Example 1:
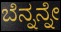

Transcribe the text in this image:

ಬೆನ್ನನ್ನೇ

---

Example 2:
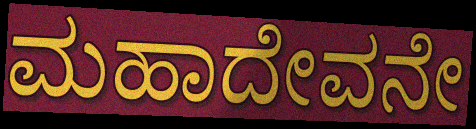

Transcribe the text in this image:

ಮಹಾದೇವನೇ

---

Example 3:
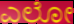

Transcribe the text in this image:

ಎಲೋ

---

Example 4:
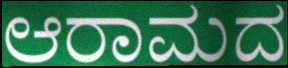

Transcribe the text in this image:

ಆರಾಮದ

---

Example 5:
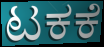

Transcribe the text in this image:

ಟಕಕೆ